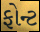
ફોન્ટ